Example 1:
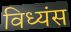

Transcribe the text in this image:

विध्यंस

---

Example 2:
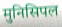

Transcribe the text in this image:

मुनिसिपल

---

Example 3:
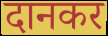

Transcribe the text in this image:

दानकर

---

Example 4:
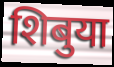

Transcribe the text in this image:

शिबुया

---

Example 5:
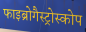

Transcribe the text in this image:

फाइब्रोगैस्ट्रोस्कोप